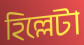
হিল্লেটা